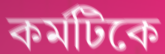
কর্মটিকে